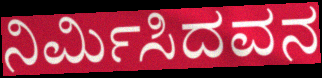
ನಿರ್ಮಿಸಿದವನ